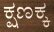
ಕ್ಷಣಕ್ಕ